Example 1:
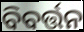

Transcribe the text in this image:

ବିବର୍ତ୍ତନ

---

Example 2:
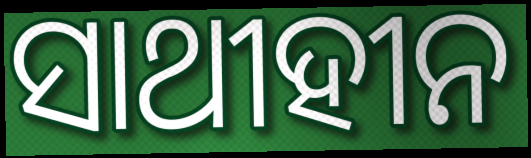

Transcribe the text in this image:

ସାଥୀହୀନ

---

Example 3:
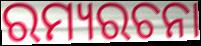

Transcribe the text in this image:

ରମ୍ୟରଚନା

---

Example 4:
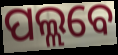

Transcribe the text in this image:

ପଲ୍ଲବେ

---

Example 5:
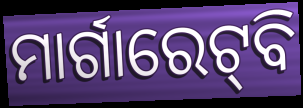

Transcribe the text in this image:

ମାର୍ଗାରେଟ୍‌ବି